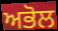
ਅਭੋਲ